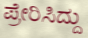
ಪ್ರೇರಿಸಿದ್ದು